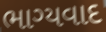
ભાગ્યવાદ